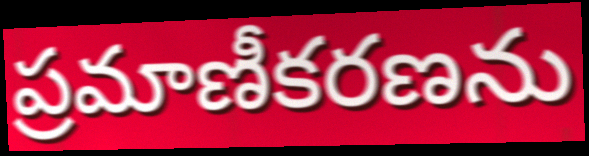
ప్రమాణీకరణను